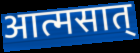
आत्मसात्